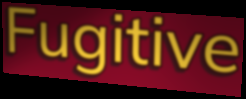
Fugitive